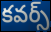
కవర్స్